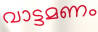
വാട്ടമണം